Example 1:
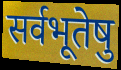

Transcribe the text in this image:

सर्वभूतेषु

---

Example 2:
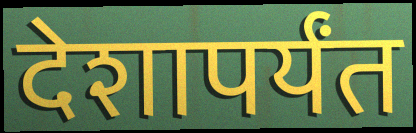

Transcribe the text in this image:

देशापर्यंत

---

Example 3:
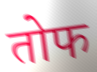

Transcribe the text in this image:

तोफ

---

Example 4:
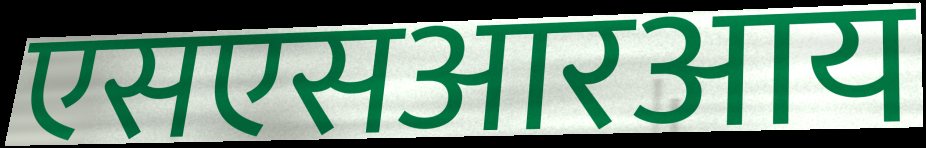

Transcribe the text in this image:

एसएसआरआय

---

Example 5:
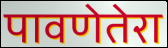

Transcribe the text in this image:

पावणेतेरा